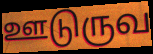
ஊடுருவ